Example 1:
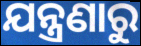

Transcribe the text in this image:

ଯନ୍ତ୍ରଣାରୁ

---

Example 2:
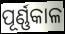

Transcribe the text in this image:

ପୂର୍ଣ୍ଣକାଳ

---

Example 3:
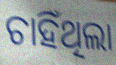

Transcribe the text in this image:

ଚାହିଁଥିଲା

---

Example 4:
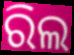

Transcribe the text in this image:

ରିଲ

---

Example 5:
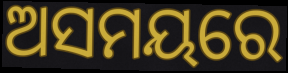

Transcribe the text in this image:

ଅସମୟରେ